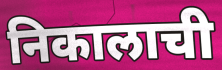
निकालाची